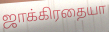
ஜாக்கிரதையா